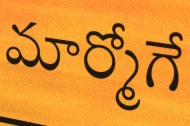
మార్మోగే